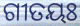
ଗୀତୟଃ